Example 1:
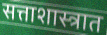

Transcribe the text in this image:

सत्ताशास्त्रात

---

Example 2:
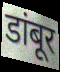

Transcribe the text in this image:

डांबूर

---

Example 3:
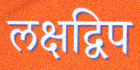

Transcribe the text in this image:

लक्षद्विप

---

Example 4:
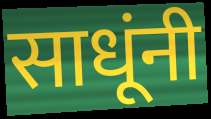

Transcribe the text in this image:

साधूंनी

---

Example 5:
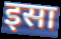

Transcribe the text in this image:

इसा